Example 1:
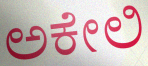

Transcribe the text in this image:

ಅಕೇಲಿ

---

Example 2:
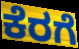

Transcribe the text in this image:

ಕೆರಗೆ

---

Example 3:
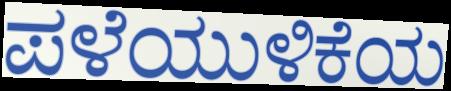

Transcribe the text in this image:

ಪಳೆಯುಳಿಕೆಯ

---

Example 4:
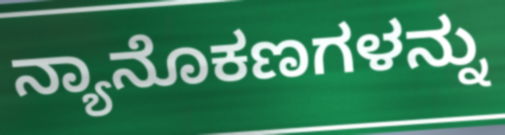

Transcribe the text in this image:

ನ್ಯಾನೊಕಣಗಳನ್ನು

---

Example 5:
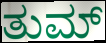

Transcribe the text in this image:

ತುಮ್